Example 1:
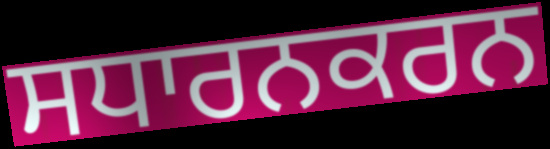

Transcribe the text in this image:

ਸਧਾਰਨਕਰਨ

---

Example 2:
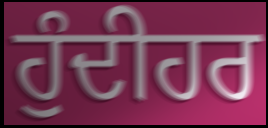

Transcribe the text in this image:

ਹੁੰਦੀਹਰ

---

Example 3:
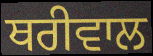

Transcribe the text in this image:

ਥਰੀਵਾਲ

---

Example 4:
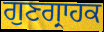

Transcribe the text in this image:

ਗੁਣਗ੍ਰਾਹਕ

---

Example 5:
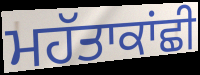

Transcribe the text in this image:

ਮਹੱਤਾਕਾਂਛੀ